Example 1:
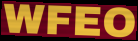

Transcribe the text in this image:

WFEO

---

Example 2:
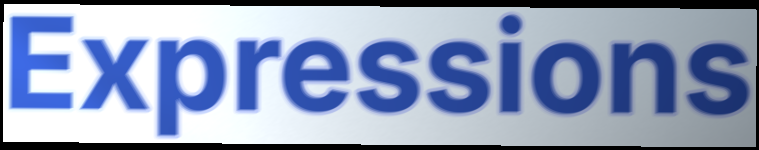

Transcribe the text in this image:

Expressions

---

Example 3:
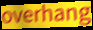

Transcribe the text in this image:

overhang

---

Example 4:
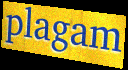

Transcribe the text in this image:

plagam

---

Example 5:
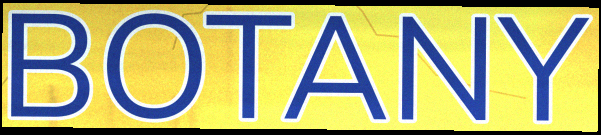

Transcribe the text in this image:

BOTANY